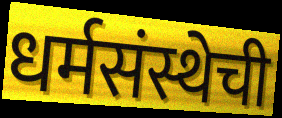
धर्मसंस्थेची